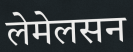
लेमेलसन